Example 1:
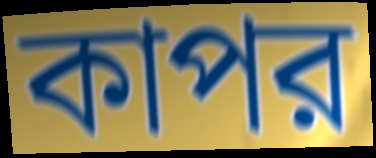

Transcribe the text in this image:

কাপর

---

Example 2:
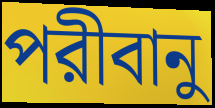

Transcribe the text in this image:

পরীবানু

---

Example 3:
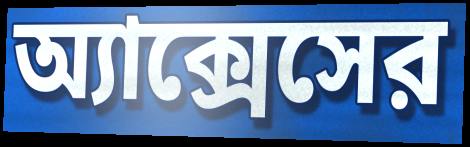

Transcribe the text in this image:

অ্যাক্সেসের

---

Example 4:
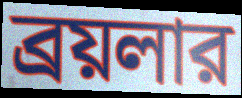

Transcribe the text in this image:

ব্রয়লার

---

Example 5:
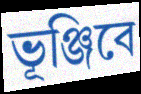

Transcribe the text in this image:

ভূঞ্জিবে